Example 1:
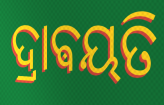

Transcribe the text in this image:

ଦ୍ରାଵୟତି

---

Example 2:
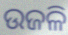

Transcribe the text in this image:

ଉଜଳି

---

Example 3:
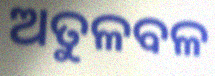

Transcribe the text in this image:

ଅତୁଳବଳ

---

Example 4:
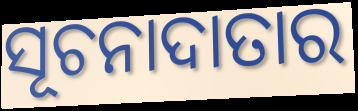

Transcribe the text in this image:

ସୂଚନାଦାତାର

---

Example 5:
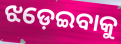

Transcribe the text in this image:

ଝଡ଼େଇବାକୁ